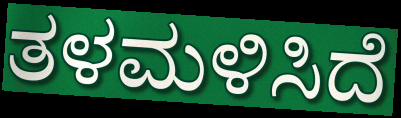
ತಳಮಳಿಸಿದೆ